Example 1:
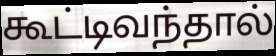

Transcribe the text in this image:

கூட்டிவந்தால்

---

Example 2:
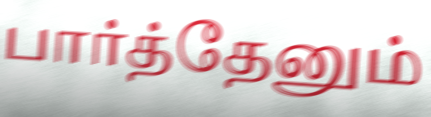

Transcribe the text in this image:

பார்த்தேனும்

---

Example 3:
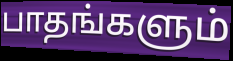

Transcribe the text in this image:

பாதங்களும்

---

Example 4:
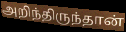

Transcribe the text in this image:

அறிந்திருந்தான்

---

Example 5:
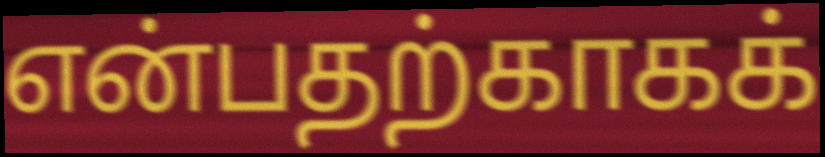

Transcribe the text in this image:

என்பதற்காகக்